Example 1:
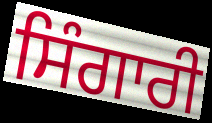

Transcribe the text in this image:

ਸਿੰਗਾਰੀ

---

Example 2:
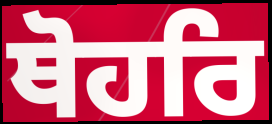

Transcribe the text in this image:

ਥੋਹਰਿ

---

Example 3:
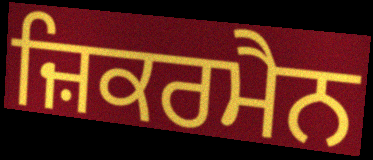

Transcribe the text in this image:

ਜ਼ਿਕਰਮੈਨ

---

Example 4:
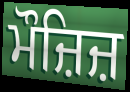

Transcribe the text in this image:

ਮੌਜ਼ਿਜ਼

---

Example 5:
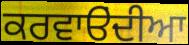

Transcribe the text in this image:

ਕਰਵਾੳਂਦੀਆ